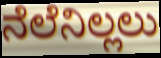
ನೆಲೆನಿಲ್ಲಲು